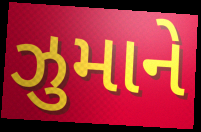
ઝુમાને